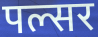
पल्सर